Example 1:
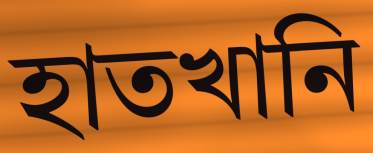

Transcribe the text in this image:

হাতখানি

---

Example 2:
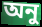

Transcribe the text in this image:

অনু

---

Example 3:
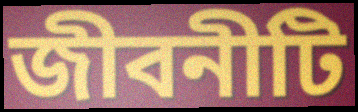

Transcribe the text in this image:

জীবনীটি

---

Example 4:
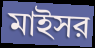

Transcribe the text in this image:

মাইসর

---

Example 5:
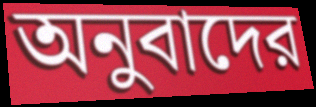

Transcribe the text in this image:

অনুবাদের